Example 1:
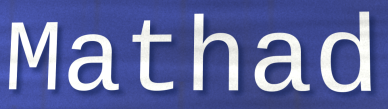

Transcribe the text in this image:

Mathad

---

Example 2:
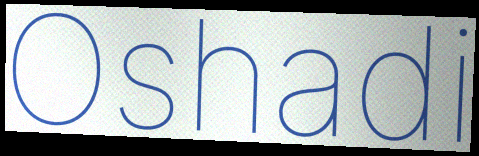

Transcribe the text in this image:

Oshadi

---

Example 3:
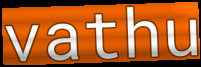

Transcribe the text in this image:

vathu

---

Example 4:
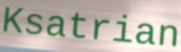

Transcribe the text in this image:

Ksatrian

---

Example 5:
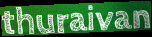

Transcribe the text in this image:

thuraivan